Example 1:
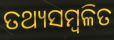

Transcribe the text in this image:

ତଥ୍ୟସମ୍ବଳିତ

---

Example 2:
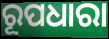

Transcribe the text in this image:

ରୂପଧାରା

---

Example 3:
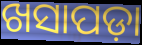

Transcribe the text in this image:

ଖସାପଡ଼ା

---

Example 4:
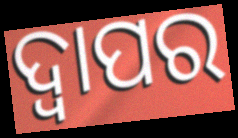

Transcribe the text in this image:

ଦ୍ୱାପର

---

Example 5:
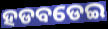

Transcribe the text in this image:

ହଡବଡେଇ